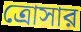
ত্রোসার